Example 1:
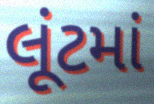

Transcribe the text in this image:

લૂંટમાં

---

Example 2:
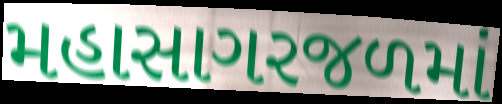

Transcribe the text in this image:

મહાસાગરજળમાં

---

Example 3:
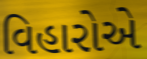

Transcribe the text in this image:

વિહારોએ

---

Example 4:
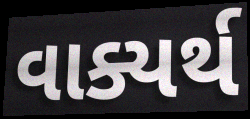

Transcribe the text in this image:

વાક્યર્થ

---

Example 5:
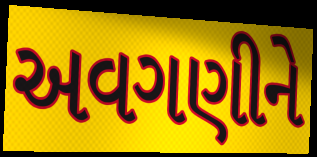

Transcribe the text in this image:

અવગણીને